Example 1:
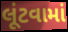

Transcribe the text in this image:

લૂંટવામાં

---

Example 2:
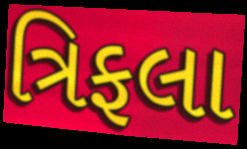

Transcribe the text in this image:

ત્રિફલા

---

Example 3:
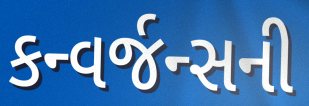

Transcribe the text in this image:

કન્વર્જન્સની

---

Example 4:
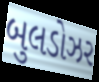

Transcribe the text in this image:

બુલડોઝર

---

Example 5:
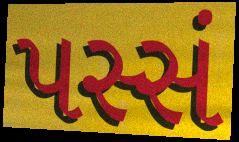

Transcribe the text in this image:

પસ્સં